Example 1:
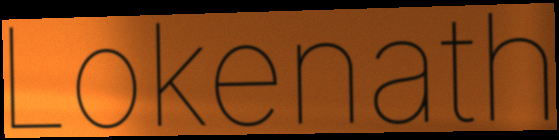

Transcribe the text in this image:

Lokenath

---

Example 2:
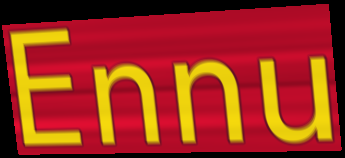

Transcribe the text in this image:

Ennu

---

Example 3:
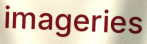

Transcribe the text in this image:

imageries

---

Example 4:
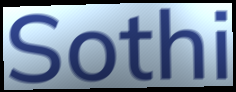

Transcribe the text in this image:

Sothi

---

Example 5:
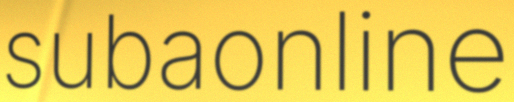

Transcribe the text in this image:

subaonline